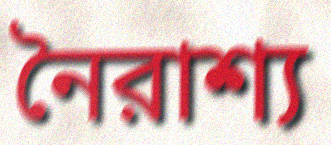
নৈরাশ্য